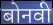
बोनवी